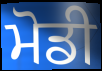
ਮੋਡੀ